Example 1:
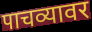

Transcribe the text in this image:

पाचव्यावर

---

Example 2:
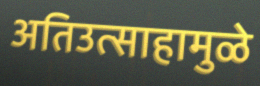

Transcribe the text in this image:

अतिउत्साहामुळे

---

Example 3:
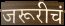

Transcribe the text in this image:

जरूरीचं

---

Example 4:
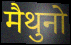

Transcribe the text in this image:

मैथुनो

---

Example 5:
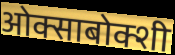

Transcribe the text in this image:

ओक्साबोक्शी